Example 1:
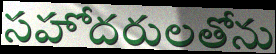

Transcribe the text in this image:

సహోదరులతోను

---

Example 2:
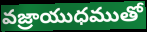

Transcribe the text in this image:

వజ్రాయుధముతో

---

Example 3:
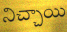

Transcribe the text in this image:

నిచ్చాయి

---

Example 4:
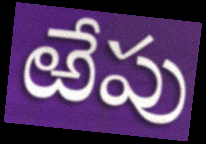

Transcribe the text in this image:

ఱేపు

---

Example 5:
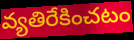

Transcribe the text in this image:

వ్యతిరేకించటం